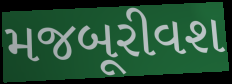
મજબૂરીવશ